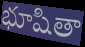
భూషితా